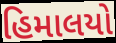
હિમાલયો